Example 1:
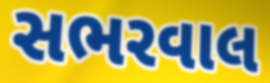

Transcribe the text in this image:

સભરવાલ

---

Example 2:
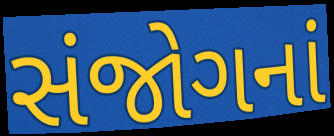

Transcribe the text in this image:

સંજોગનાં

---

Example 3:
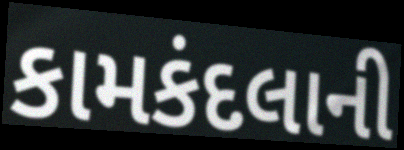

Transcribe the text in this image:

કામકંદલાની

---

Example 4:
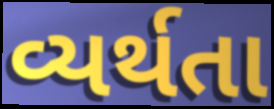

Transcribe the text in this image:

વ્યર્થતા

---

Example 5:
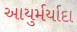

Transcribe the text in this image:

આયુર્મર્યાદા